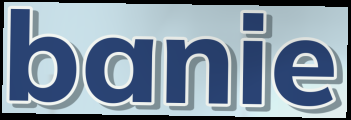
banie